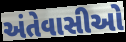
અંતેવાસીઓ